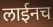
लाईनच